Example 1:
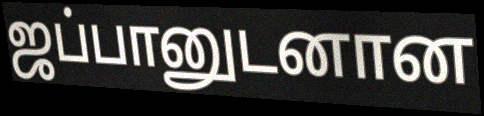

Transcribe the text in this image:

ஜப்பானுடனான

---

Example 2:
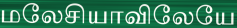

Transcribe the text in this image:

மலேசியாவிலேயே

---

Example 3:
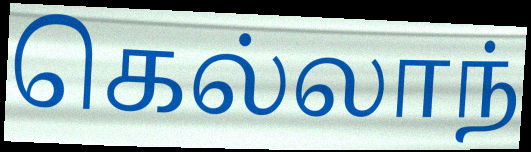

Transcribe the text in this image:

கெல்லாந்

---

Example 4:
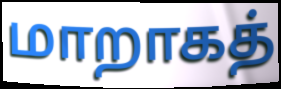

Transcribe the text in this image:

மாறாகத்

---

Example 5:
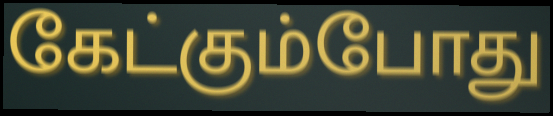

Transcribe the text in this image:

கேட்கும்போது